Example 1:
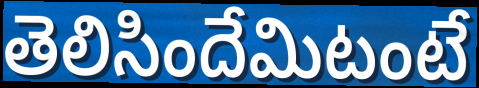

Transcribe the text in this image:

తెలిసిందేమిటంటే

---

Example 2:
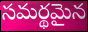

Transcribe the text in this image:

సమర్థమైన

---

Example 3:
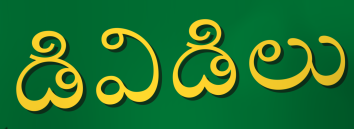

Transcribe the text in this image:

డివిడిలు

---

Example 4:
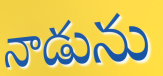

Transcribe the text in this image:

నాడును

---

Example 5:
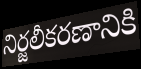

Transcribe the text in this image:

నిర్జలీకరణానికి